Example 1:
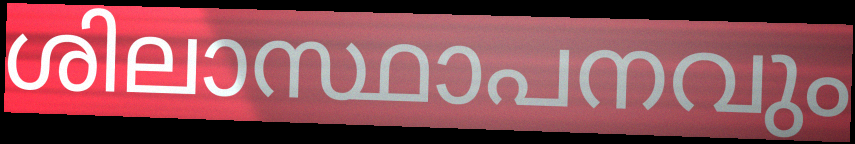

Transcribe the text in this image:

ശിലാസ്ഥാപനവും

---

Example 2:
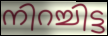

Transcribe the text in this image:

നിറച്ചിട്ട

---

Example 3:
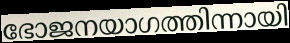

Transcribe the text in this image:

ഭോജനയാഗത്തിന്നായി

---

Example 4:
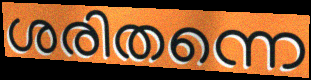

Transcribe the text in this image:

ശരിതന്നെ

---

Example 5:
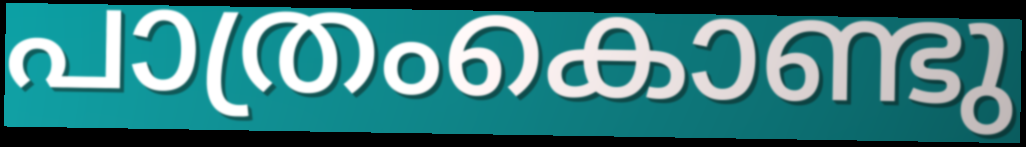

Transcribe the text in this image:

പാത്രംകൊണ്ടു